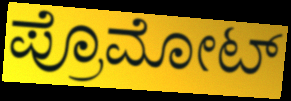
ಪ್ರೊಮೋಟ್